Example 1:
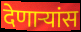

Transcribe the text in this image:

देणाऱ्यांस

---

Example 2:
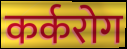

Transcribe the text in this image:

कर्करोग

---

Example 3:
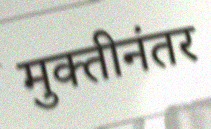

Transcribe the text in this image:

मुक्तीनंतर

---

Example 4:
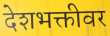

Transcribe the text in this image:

देशभक्तीवर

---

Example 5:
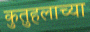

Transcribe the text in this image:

कुतुहलाच्या